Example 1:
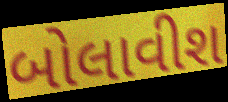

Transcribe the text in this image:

બોલાવીશ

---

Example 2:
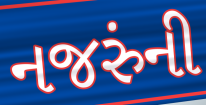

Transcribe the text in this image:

નજરુંની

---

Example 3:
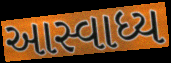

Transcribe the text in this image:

આસ્વાધ્ય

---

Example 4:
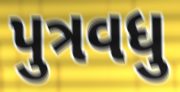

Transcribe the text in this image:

પુત્રવધુ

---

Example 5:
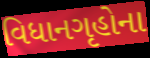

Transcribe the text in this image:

વિધાનગૃહોના